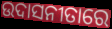
ଉଦାସନୀତାରେ